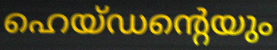
ഹെയ്ഡന്റെയും